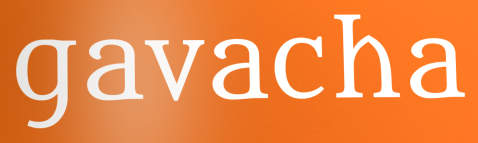
gavacha